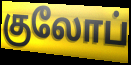
குலோப்